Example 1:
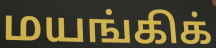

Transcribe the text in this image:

மயங்கிக்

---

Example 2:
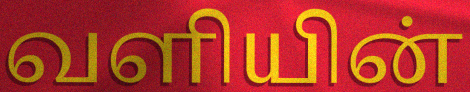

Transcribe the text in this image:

வளியின்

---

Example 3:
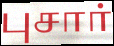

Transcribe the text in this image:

புசார்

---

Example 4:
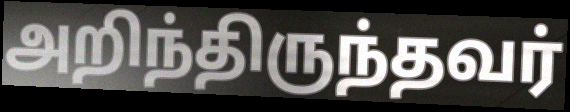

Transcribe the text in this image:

அறிந்திருந்தவர்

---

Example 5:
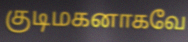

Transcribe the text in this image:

குடிமகனாகவே